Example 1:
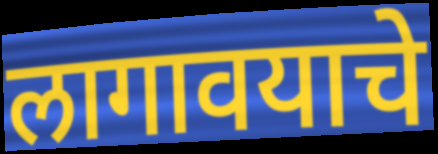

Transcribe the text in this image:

लागावयाचे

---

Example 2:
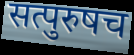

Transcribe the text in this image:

सत्पुरुषच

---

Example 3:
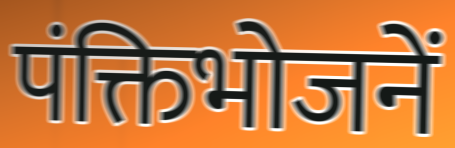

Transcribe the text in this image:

पंक्तिभोजनें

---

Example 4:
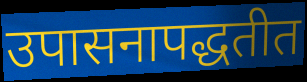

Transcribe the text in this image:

उपासनापद्धतीत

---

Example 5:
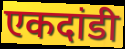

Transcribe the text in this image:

एकदांडी